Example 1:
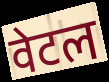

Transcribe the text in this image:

वेटल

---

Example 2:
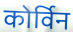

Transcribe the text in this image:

कोर्विन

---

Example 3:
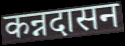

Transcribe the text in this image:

कन्नदासन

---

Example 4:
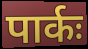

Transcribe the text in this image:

पार्कः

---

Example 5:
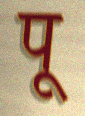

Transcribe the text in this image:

पू